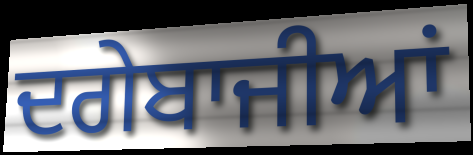
ਦਗੇਬਾਜੀਆਂ